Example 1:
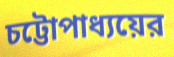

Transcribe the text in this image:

চট্টোপাধ্যয়ের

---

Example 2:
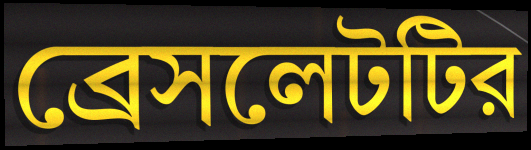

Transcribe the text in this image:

ব্রেসলেটটির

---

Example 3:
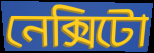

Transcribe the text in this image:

নেক্সিটো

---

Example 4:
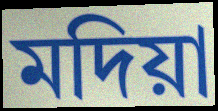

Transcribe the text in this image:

মদিয়া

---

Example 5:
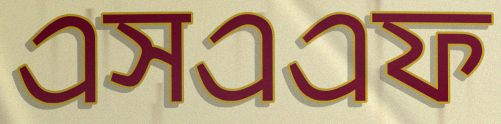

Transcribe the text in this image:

এসএএফ